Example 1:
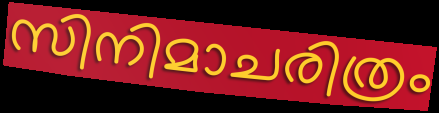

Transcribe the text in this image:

സിനിമാചരിത്രം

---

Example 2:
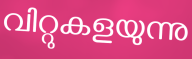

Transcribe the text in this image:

വിറ്റുകളയുന്നു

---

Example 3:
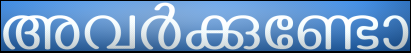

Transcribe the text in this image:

അവർക്കുണ്ടോ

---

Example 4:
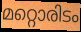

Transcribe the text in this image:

മറ്റൊരിടം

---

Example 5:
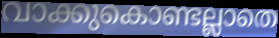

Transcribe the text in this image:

വാക്കുകൊണ്ടല്ലാതെ